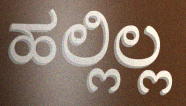
ಹಲ್ಲಿಲ್ಲ